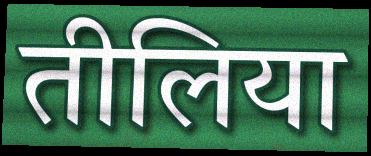
तीलिया